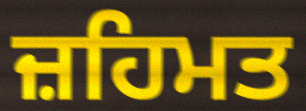
ਜ਼ਹਿਮਤ